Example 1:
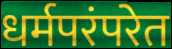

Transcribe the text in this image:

धर्मपरंपरेत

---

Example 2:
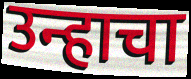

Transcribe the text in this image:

उन्हाचा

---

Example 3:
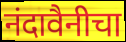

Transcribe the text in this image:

नंदावैनीचा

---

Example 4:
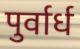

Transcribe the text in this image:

पुर्वार्ध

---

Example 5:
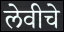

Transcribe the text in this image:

लेवीचे